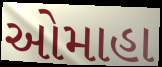
ઓમાહા